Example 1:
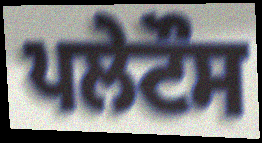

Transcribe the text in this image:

ਪਲੇਟੌਸ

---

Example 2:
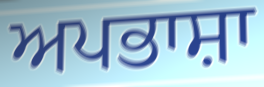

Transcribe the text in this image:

ਅਪਭਾਸ਼ਾ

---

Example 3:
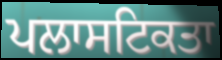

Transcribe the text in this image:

ਪਲਾਸਟਿਕਤਾ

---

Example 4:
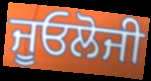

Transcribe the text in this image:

ਜੂਓਲੋਜੀ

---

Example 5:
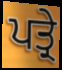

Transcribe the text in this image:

ਪਤ੍ਰੇ